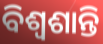
ବିଶ୍ୱଶାନ୍ତି